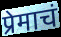
प्रेमाचं